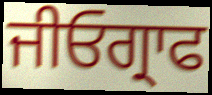
ਜੀਓਗ੍ਰਾਫ